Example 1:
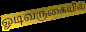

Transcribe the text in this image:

ஓடிவருகையில்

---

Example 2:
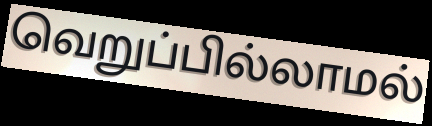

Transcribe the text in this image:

வெறுப்பில்லாமல்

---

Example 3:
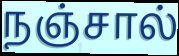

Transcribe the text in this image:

நஞ்சால்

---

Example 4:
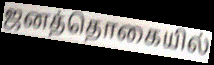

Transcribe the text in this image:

ஜனத்தொகையில்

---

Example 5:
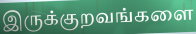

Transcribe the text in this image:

இருக்குறவங்களை